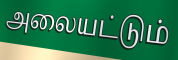
அலையட்டும்